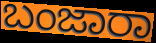
ಬಂಜಾರಾ